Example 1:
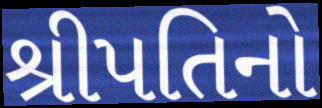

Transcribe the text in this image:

શ્રીપતિનો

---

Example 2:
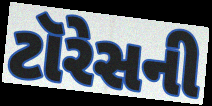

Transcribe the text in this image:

ટૉરેસની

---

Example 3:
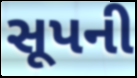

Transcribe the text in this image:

સૂપની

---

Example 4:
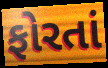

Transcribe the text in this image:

ફોરતાં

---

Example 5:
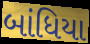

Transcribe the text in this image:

બાંધિયા